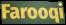
Farooqi